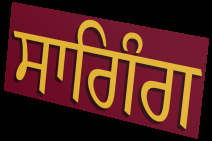
ਸਾਗਿੰਗ